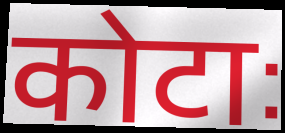
कोटाः